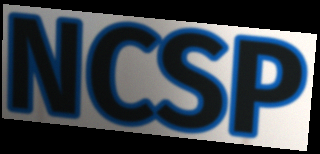
NCSP